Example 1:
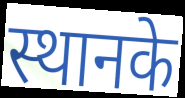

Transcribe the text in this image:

स्थानके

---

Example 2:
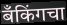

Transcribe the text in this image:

बँकिंगचा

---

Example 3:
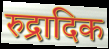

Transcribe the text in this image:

रुद्रादिक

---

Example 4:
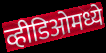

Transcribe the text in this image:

व्हीडिओमध्ये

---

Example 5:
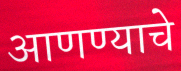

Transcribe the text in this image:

आणण्याचे